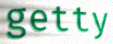
getty